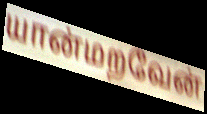
யான்மறவேன்